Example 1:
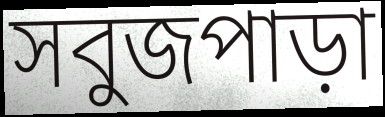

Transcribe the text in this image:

সবুজপাড়া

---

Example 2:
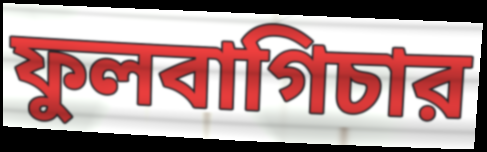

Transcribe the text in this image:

ফুলবাগিচার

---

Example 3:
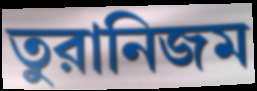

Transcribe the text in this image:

তুরানিজম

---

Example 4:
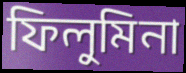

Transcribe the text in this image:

ফিলুমিনা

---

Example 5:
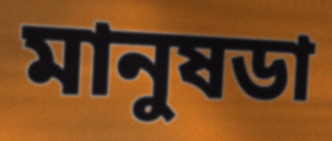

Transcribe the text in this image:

মানুষডা